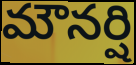
మౌనర్షి